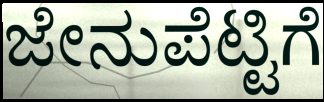
ಜೇನುಪೆಟ್ಟಿಗೆ